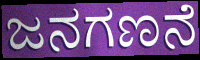
ಜನಗಣನೆ